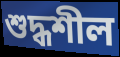
শুদ্ধশীল